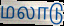
மலாடு